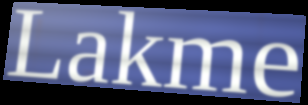
Lakme